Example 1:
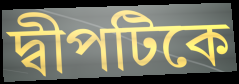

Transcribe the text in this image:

দ্বীপটিকে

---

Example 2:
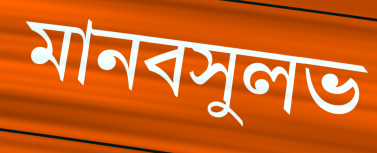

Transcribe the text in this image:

মানবসুলভ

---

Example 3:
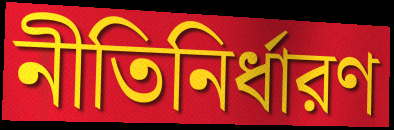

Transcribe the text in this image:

নীতিনির্ধারণ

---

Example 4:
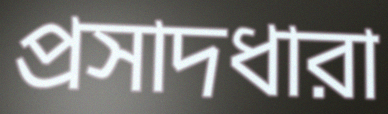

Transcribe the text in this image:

প্রসাদধারা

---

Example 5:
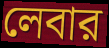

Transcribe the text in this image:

লেবার